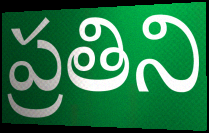
ప్రతిని